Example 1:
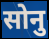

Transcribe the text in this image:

सोनु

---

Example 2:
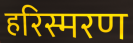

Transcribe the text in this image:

हरिस्मरण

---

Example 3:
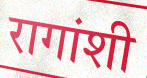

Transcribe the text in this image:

रागांशी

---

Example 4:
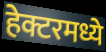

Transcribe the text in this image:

हेक्टरमध्ये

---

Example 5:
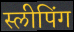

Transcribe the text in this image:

स्लीपिंग